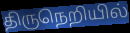
திருநெறியில்